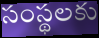
సంస్థలకు